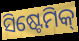
ସିଷ୍ଟେମିକ୍